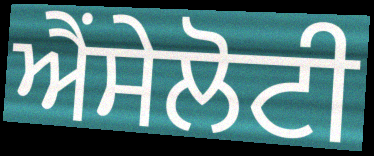
ਐਂਸੇਲੋਟੀ